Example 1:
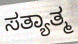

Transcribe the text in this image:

ಸತ್ಯಾತ್ಮ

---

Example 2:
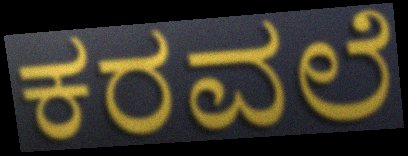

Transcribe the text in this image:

ಕರವಲೆ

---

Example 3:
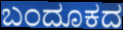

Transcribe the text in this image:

ಬಂದೂಕದ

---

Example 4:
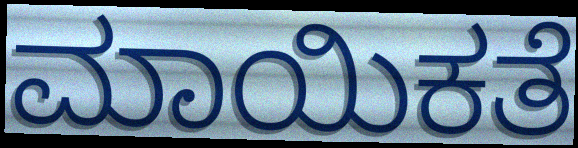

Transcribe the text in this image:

ಮಾಯಿಕತೆ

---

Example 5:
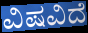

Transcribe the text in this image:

ವಿಷವಿದೆ